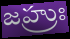
జహ్రుః